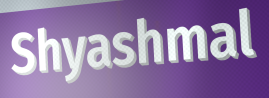
Shyashmal